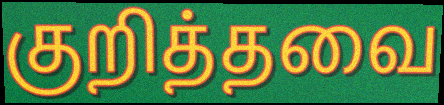
குறித்தவை